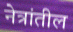
नेत्रांतील